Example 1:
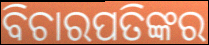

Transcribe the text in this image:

ବିଚାରପତିଙ୍କର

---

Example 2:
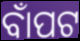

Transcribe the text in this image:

ବାଁପଟ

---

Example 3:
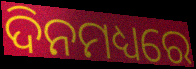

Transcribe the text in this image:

ଦିନମଧ୍ୟରେ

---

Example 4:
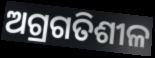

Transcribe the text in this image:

ଅଗ୍ରଗତିଶୀଳ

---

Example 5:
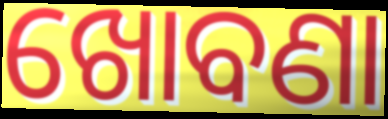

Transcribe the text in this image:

ଖୋବଣା